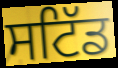
ਸਟਿੱਡ